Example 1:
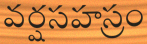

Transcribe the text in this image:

వర్షసహస్రం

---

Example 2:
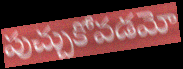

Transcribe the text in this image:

పుచ్చుకోవడమో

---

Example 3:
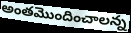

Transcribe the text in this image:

అంతమొందించాలన్న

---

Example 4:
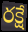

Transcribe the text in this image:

రక్షే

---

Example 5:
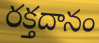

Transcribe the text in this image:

రక్తదానం